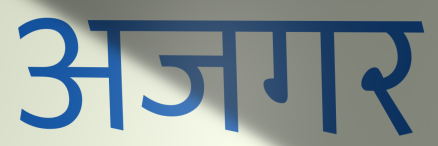
अजगर